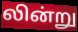
லின்று